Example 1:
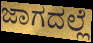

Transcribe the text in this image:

ಜಾಗದಲ್ಲೆ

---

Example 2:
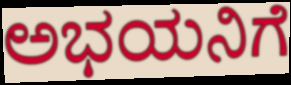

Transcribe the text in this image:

ಅಭಯನಿಗೆ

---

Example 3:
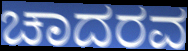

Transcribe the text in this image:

ಚಾದರವ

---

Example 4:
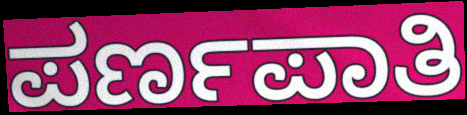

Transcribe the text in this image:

ಪರ್ಣಪಾತಿ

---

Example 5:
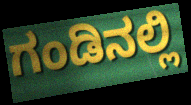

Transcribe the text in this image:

ಗಂಡಿನಲ್ಲಿ